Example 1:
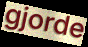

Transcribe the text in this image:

gjorde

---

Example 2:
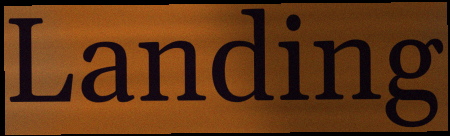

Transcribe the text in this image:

Landing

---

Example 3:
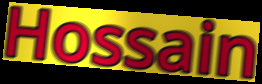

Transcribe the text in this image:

Hossain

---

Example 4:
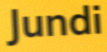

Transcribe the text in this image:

Jundi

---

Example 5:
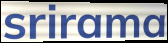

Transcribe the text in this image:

srirama